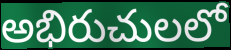
అభిరుచులలో